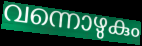
വന്നൊഴുകും